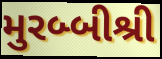
મુરબ્બીશ્રી